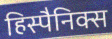
हिस्पैनिक्स